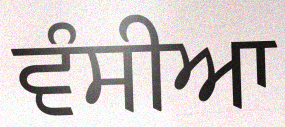
ਵੰਸੀਆ